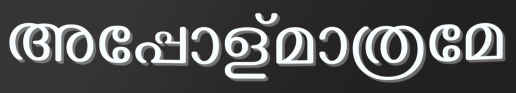
അപ്പോള്മാത്രമേ